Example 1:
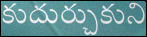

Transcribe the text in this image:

కుదుర్చుకుని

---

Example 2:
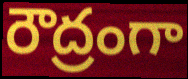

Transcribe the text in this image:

రౌద్రంగా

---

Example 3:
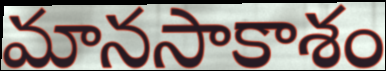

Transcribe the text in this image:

మానసాకాశం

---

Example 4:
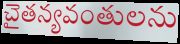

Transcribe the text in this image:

చైతన్యవంతులను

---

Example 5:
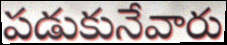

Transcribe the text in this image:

పడుకునేవారు